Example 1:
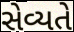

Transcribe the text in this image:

સેવ્યતે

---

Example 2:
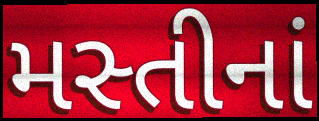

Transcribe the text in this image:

મસ્તીનાં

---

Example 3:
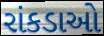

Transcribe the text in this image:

રાંકડાઓ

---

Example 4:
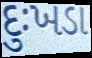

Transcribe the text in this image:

દુઃખડા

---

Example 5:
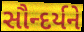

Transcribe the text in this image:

સૌન્દર્યને